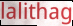
lalithag